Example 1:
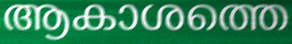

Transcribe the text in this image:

ആകാശത്തെ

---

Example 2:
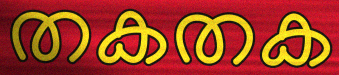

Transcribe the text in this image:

തകതക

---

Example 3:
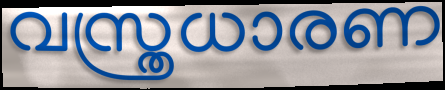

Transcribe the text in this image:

വസ്ത്രധാരണ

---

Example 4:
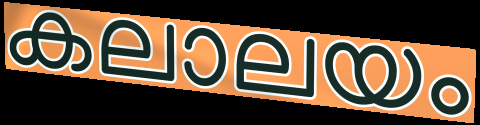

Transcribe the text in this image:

കലാലയം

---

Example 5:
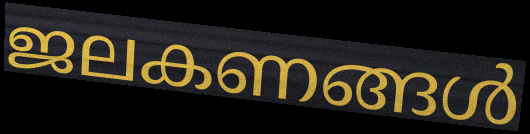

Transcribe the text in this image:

ജലകണങ്ങൾ